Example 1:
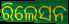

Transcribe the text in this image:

ରିଲେସନ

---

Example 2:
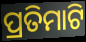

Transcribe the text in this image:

ପ୍ରତିମାଟି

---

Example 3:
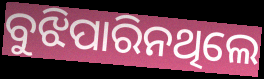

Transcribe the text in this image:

ବୁଝିପାରିନଥିଲେ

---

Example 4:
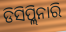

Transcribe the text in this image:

ଡିସିପ୍ଲିନାରି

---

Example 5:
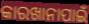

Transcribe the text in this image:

କାରଖାନାପାଇଁ